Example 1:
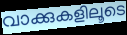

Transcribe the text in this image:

വാക്കുകളിലൂടെ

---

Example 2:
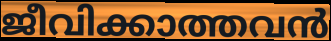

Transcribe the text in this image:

ജീവിക്കാത്തവൻ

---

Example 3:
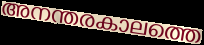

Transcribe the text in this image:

അനന്തരകാലത്തെ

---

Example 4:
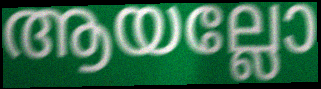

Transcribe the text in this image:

ആയല്ലോ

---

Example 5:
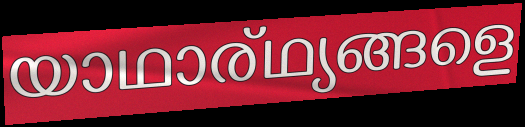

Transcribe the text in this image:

യാഥാര്ഥ്യങ്ങളെ